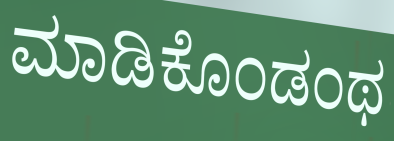
ಮಾಡಿಕೊಂಡಂಥ